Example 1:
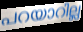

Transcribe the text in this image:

പറയാറില്ല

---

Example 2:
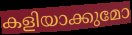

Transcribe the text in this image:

കളിയാക്കുമോ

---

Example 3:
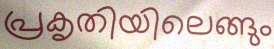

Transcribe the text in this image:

പ്രകൃതിയിലെങ്ങും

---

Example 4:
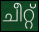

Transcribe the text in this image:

ചീറ്റ്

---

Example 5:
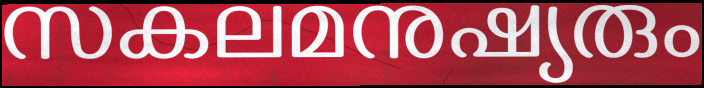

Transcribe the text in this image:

സകലമനുഷ്യരും